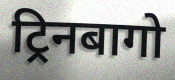
ट्रिनबागो